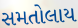
સમતોલાય